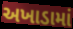
અખાડામાં